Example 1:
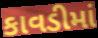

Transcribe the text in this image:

કાવડીમાં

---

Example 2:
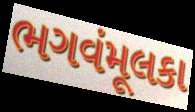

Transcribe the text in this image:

ભગવંમૂલકા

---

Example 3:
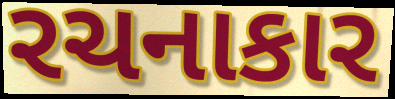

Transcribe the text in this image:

રચનાકાર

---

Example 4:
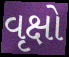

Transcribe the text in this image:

વૃક્ષો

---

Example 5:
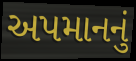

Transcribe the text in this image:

અપમાનનું